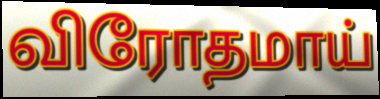
விரோதமாய்